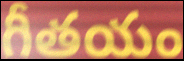
గీతయం